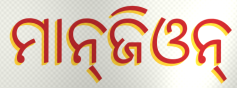
ମାନ୍‌ଜିଓନ୍